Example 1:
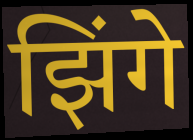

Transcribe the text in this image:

झिंगे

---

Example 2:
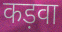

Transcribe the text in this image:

कड़वा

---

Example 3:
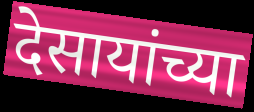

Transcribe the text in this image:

देसायांच्या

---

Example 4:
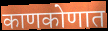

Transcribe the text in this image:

काणकोणात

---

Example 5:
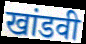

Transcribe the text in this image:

खांडवी